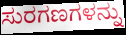
ಸುರಗಣಗಳನ್ನು